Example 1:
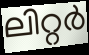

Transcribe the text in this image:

ലിറ്റർ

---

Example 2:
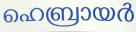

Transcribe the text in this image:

ഹെബ്രായർ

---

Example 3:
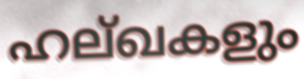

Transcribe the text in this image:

ഹല്ഖകളും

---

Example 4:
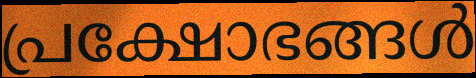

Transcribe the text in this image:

പ്രക്ഷോഭങ്ങൾ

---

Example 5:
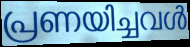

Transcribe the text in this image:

പ്രണയിച്ചവൾ